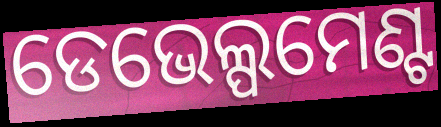
ଡେଭେଲ୍ପମେଣ୍ଟ